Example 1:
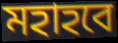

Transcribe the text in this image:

মহাহবে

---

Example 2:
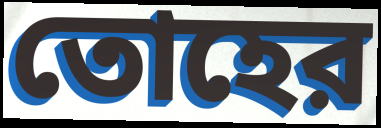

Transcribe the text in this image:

তোহের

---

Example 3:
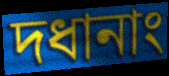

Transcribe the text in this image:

দধানাং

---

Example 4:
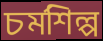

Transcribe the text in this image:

চর্মশিল্প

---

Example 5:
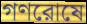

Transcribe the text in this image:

গণরোষে